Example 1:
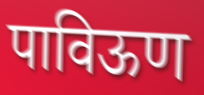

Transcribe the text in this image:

पाविऊण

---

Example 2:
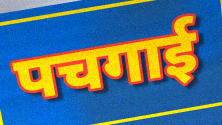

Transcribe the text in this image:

पचगाई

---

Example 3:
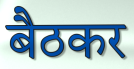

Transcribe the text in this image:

बैठकर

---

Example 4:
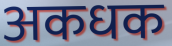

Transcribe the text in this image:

अकधक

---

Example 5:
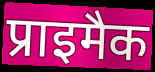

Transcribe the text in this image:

प्राइमैक